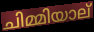
ചിമ്മിയാല്